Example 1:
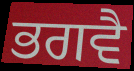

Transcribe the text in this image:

ਭਗਵੈ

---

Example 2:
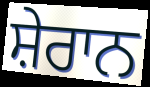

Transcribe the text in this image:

ਸ਼ੇਰਾਨ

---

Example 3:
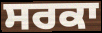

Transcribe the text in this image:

ਸਰਕਾ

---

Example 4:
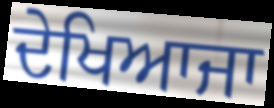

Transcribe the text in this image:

ਦੇਖਿਆਜਾ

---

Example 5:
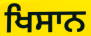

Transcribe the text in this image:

ਖਿਸਾਨ